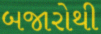
બજારોથી